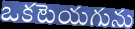
ఒకటెయగును